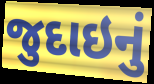
જુદાઇનું